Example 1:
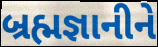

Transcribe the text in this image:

બ્રહ્મજ્ઞાનીને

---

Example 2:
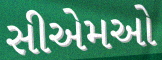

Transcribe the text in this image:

સીએમઓ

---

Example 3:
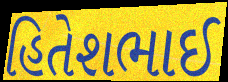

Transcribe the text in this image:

હિતેશભાઈ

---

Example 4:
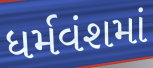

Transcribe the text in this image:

ધર્મવંશમાં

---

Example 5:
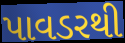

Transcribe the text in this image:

પાવડરથી